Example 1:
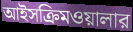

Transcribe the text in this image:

আইসক্রিমওয়ালার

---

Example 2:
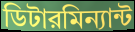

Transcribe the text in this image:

ডিটারমিন্যান্ট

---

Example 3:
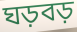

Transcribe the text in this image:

ঘড়বড়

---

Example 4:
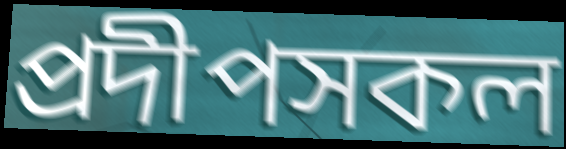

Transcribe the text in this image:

প্রদীপসকল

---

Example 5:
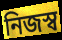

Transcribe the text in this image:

নিজস্ব